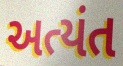
અત્યંત